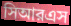
সিআরএস